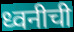
ध्वनीची